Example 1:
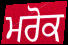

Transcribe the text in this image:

ਮਰੋਕ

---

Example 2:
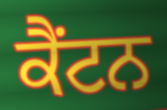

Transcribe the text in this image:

ਕੈਂਟਨ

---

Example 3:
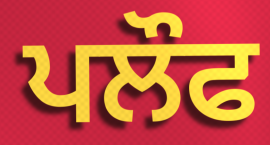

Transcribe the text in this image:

ਪਲੌਫ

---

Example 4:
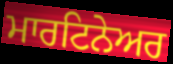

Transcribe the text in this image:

ਮਾਰਟਿਨੇਅਰ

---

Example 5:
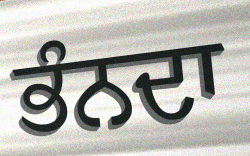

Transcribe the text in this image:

ਭੰਨਦਾ